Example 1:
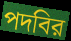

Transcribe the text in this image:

পদবির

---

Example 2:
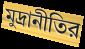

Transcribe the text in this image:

মুদ্রানীতির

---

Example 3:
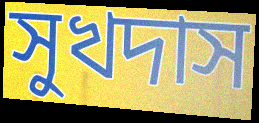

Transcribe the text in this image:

সুখদাস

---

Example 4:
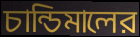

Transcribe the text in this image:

চান্ডিমালের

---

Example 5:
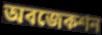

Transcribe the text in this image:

অবজেকশন